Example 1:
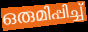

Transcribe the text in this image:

ഒരുമിപ്പിച്ച്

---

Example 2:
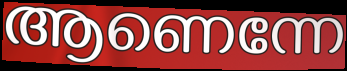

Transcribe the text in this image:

ആണെന്നേ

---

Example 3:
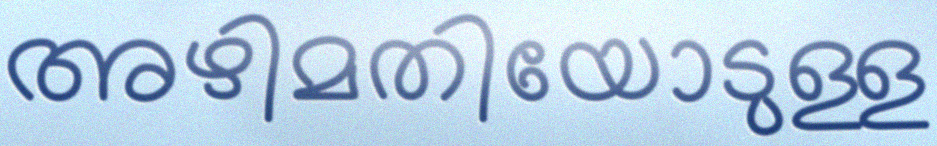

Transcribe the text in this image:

അഴിമതിയോടുള്ള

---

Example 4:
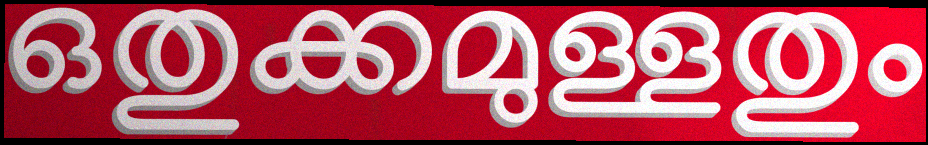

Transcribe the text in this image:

ഒതുക്കമുള്ളതും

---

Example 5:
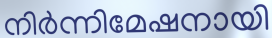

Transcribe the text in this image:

നിർന്നിമേഷനായി